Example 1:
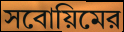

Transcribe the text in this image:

সবোয়িমের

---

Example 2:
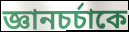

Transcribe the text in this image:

জ্ঞানচর্চাকে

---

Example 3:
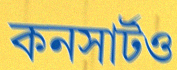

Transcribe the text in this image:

কনসার্টও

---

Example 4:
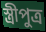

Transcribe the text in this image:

স্ত্রীপুত্র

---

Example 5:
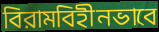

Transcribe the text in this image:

বিরামবিহীনভাবে